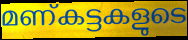
മണ്കട്ടകളുടെ